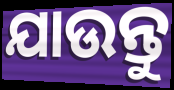
ଯାଉନ୍ତୁ